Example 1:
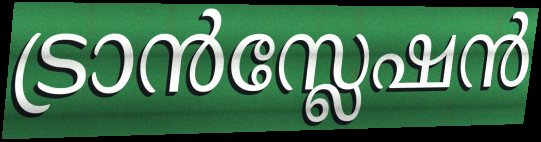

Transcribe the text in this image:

ട്രാൻസ്ലേഷൻ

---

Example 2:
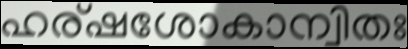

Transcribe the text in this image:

ഹര്ഷശോകാന്വിതഃ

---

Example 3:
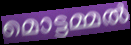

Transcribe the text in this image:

മൊട്ടമ്മൽ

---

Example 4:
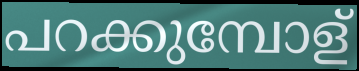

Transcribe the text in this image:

പറക്കുമ്പോള്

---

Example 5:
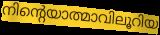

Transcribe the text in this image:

നിന്റെയാത്മാവിലൂറിയ